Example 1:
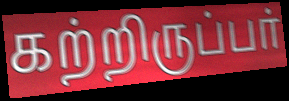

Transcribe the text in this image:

கற்றிருப்பர்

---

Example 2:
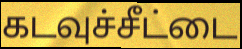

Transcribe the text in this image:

கடவுச்சீட்டை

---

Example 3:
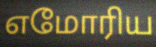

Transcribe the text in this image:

எமோரிய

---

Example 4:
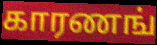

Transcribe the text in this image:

காரணங்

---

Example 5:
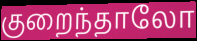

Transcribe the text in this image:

குறைந்தாலோ